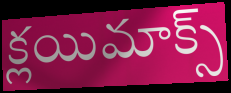
క్లయిమాక్స్